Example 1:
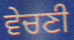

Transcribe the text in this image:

ਵੇਚਣੀ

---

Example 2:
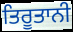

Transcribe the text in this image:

ਤਿਰੂਤਾਨੀ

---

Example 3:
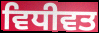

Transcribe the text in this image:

ਵਿਧੀਵਤ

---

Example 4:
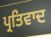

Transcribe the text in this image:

ਪ੍ਰਤਿਵਾਦ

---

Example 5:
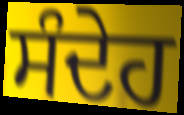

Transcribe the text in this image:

ਸੰਦੇਹ